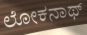
ಲೋಕನಾಥ್